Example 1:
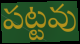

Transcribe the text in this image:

పట్టవు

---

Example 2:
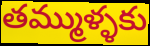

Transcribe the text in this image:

తమ్ముళ్ళకు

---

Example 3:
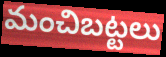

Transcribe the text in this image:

మంచిబట్టలు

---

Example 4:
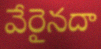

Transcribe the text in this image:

వేరైనదా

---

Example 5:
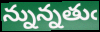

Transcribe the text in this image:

న్నున్నతుఁ